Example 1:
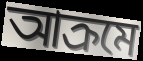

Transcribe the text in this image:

আক্রমে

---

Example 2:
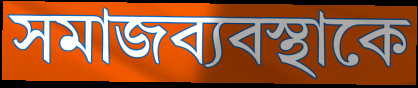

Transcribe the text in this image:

সমাজব্যবস্থাকে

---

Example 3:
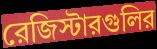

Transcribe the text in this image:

রেজিস্টারগুলির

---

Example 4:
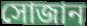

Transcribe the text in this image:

সোজান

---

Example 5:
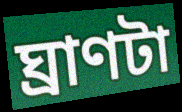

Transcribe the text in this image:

ঘ্রাণটা